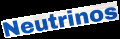
Neutrinos